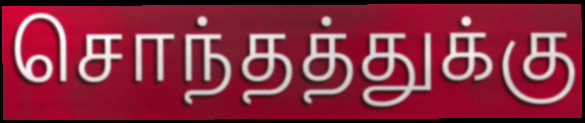
சொந்தத்துக்கு